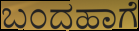
ಬಂದಹಾಗೆ